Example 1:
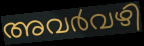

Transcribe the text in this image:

അവർവഴി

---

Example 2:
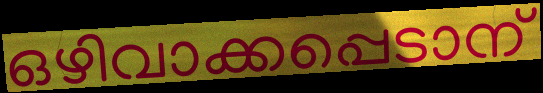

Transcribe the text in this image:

ഒഴിവാക്കപ്പെടാന്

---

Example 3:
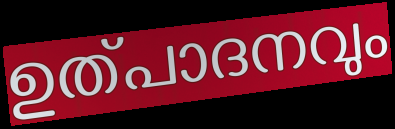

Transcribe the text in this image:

ഉത്പാദനവും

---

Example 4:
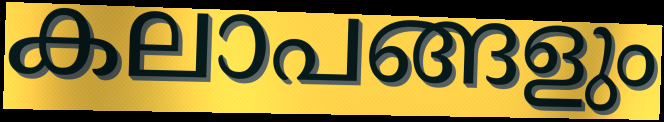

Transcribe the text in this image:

കലാപങ്ങളും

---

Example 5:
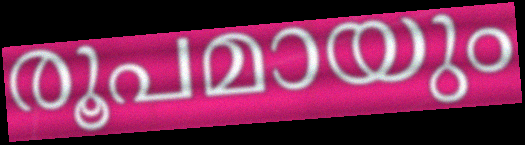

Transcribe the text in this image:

രൂപമായും